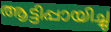
ആട്ടിപ്പായിച്ചു